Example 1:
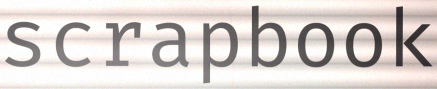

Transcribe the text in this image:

scrapbook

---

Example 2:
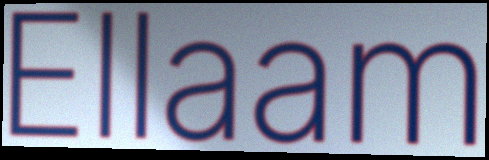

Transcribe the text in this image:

Ellaam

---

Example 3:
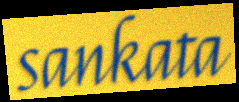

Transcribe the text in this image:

sankata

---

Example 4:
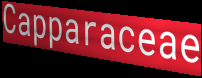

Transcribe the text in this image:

Capparaceae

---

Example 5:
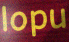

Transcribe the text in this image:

lopu